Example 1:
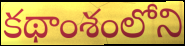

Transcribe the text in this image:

కథాంశంలోని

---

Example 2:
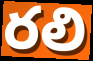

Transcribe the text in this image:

రలి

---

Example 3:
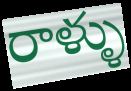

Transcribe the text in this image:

రాళ్ళు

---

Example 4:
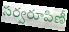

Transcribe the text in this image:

సర్వరూపిణీ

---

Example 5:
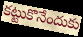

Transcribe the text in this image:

కట్టుకొనేందుకు